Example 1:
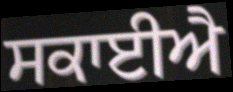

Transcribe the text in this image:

ਸਕਾਈਐ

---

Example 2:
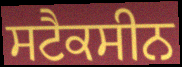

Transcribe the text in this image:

ਸਟੈਕਸੀਨ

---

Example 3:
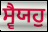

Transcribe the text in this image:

ਸ੍ਵੈਯਹੁ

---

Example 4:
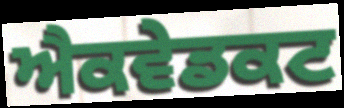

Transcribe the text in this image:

ਐਕਵੇਡਕਟ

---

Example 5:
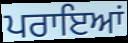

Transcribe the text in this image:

ਪਰਾਇਆਂ